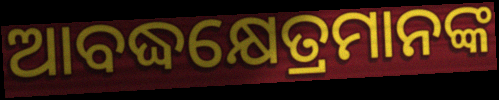
ଆବଦ୍ଧକ୍ଷେତ୍ରମାନଙ୍କ